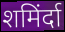
शमिंर्दा